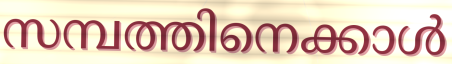
സമ്പത്തിനെക്കാൾ